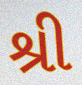
શ્રી